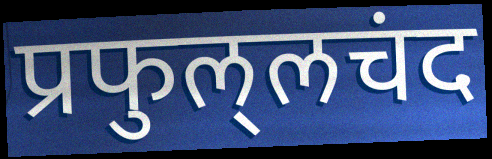
प्रफुल्लचंद